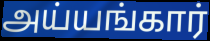
அய்யங்கார்